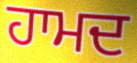
ਹਾਮਦ